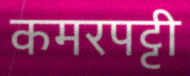
कमरपट्टी